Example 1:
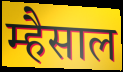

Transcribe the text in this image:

म्हैसाल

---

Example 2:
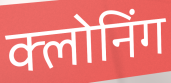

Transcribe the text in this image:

क्‍लोनिंग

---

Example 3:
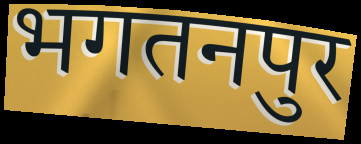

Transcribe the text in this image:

भगतनपुर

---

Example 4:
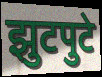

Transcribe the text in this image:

झुटपुटे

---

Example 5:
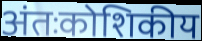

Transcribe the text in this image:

अंतःकोशिकीय